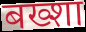
बख्शा